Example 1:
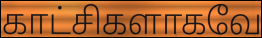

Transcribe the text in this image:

காட்சிகளாகவே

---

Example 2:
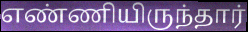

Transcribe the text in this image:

எண்ணியிருந்தார்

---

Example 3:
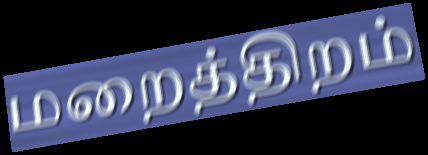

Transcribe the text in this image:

மறைத்திறம்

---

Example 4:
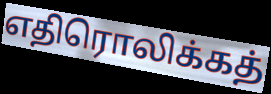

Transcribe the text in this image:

எதிரொலிக்கத்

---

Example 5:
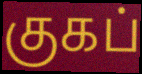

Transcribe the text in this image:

குகப்